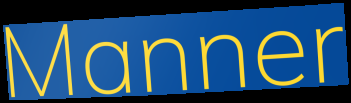
Manner